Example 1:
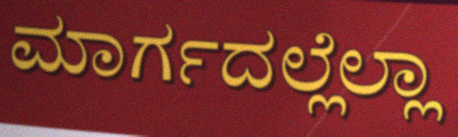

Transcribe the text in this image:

ಮಾರ್ಗದಲ್ಲೆಲ್ಲಾ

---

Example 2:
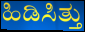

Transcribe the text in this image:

ಹಿಡಿಸಿತ್ತು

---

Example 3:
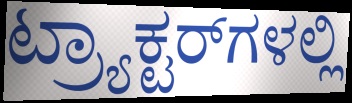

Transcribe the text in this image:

ಟ್ರ್ಯಾಕ್ಟರ್‌ಗಳಲ್ಲಿ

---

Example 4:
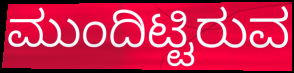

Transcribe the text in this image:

ಮುಂದಿಟ್ಟಿರುವ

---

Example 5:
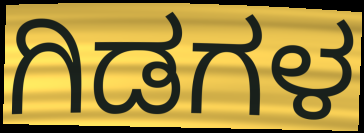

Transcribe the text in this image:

ಗಿಡಗಳ